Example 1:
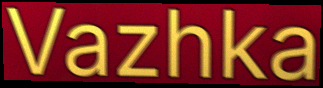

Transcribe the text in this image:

Vazhka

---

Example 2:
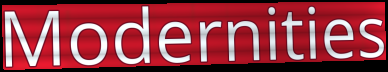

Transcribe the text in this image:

Modernities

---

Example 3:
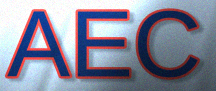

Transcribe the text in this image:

AEC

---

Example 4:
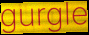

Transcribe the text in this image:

gurgle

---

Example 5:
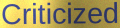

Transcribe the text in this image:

Criticized